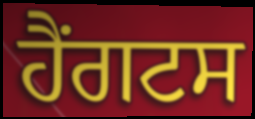
ਹੈਂਗਟਸ